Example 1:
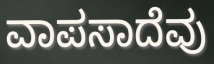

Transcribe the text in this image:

ವಾಪಸಾದೆವು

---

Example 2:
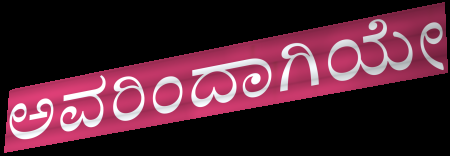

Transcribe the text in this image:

ಅವರಿಂದಾಗಿಯೇ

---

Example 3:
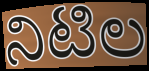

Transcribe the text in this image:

ನಿಟಿಲ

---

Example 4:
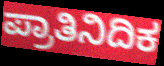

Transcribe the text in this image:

ಪ್ರಾತಿನಿದಿಕ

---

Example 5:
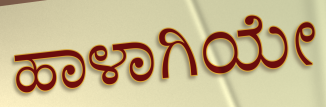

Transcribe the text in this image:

ಹಾಳಾಗಿಯೇ